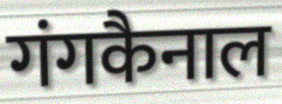
गंगकैनाल